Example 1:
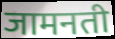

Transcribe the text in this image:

जामनती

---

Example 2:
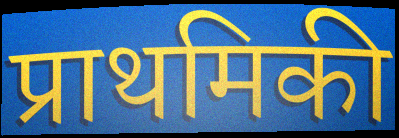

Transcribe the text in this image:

प्राथमिकी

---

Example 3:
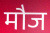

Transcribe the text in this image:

मौज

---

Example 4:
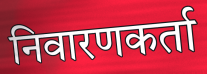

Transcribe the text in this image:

निवारणकर्ता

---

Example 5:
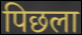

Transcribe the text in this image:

पिछला